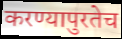
करण्यापुरतेच